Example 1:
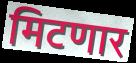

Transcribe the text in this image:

मिटणार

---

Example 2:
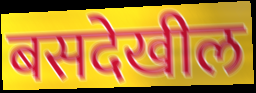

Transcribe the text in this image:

बसदेखील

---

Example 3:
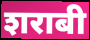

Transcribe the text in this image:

शराबी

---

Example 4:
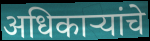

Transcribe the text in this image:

अधिकाऱ्यांचे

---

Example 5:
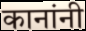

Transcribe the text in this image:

कानांनी